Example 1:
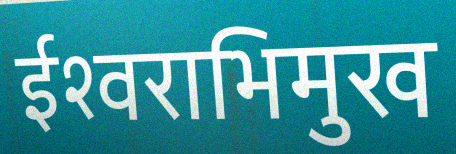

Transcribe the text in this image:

ईश्वराभिमुख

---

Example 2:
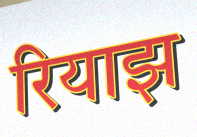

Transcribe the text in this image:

रियाझ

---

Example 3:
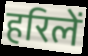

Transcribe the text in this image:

हरिलें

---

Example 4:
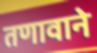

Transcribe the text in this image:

तणावाने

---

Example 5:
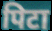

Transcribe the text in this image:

पिटा